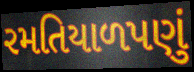
રમતિયાળપણું